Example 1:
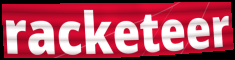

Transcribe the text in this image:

racketeer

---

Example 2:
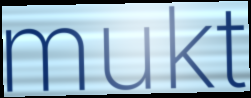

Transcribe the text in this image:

mukt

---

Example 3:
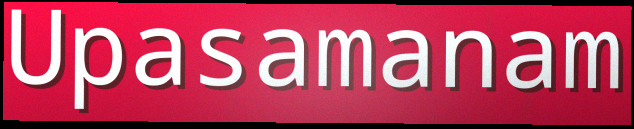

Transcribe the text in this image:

Upasamanam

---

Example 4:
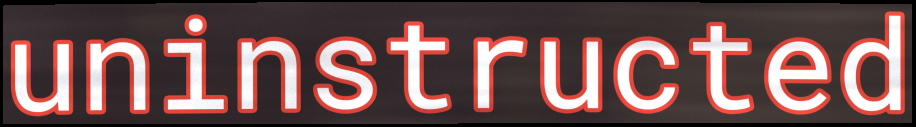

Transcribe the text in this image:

uninstructed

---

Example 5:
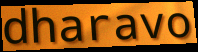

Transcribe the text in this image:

dharavo